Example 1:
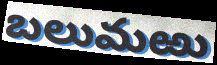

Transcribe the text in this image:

బలుమఱు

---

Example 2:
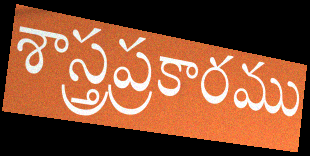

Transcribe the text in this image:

శాస్త్రప్రకారము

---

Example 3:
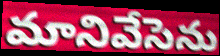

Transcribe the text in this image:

మానివేసెను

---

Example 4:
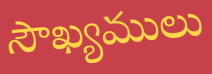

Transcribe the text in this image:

సౌఖ్యములు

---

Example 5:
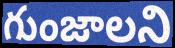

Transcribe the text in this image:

గుంజాలని